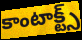
కాంటాక్ట్స్